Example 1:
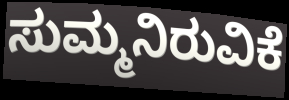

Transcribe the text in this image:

ಸುಮ್ಮನಿರುವಿಕೆ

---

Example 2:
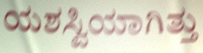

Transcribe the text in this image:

ಯಶಸ್ವಿಯಾಗಿತ್ತು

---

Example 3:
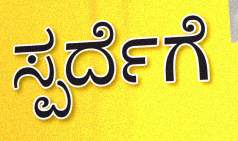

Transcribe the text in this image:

ಸ್ಪರ್ದೆಗೆ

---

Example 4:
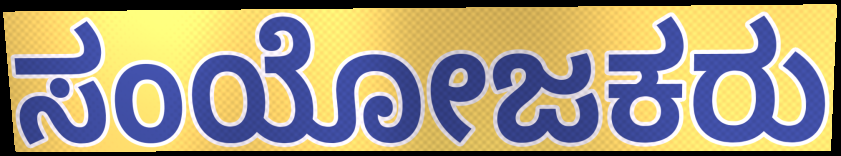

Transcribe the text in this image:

ಸಂಯೋಜಕರು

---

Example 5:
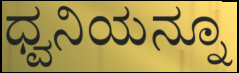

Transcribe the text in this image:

ಧ್ವನಿಯನ್ನೂ